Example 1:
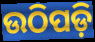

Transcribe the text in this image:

ଉଠିପଡ଼ି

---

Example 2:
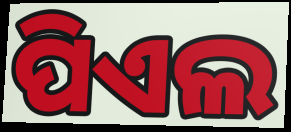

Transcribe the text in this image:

ପିଏଲ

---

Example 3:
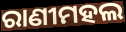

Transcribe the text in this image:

ରାଣୀମହଲ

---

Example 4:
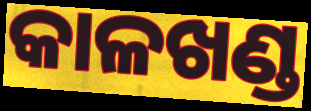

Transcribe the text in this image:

କାଳଖଣ୍ଡ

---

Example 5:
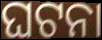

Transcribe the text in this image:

ଘଟନା